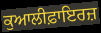
ਕੁਆਲੀਫ਼ਾਇਰਜ਼